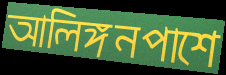
আলিঙ্গনপাশে